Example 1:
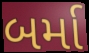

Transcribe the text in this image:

બર્મા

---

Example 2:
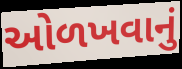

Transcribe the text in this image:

ઓળખવાનું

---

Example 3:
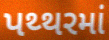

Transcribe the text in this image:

પથ્થરમાં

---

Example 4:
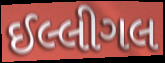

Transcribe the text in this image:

ઈલ્લીગલ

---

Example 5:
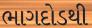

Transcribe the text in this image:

ભાગદોડથી